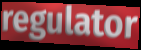
regulator